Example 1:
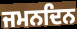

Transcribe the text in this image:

ਜਮਨਦਿਨ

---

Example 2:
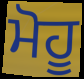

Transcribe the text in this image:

ਮੋਹੂ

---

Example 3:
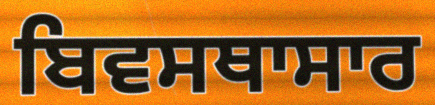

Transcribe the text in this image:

ਬਿਵਸਥਾਸਾਰ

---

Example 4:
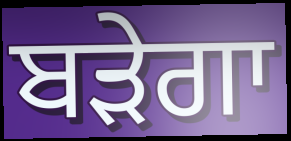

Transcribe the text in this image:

ਬੜੇਗਾ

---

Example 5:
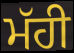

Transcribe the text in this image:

ਮੱਹੀ